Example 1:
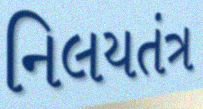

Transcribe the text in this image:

નિલયતંત્ર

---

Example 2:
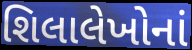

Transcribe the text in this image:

શિલાલેખોનાં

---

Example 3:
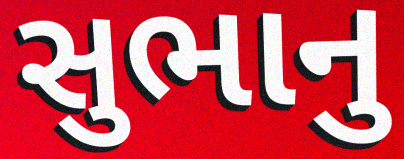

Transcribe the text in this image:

સુભાનુ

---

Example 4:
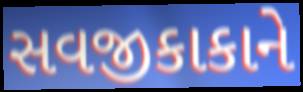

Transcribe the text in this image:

સવજીકાકાને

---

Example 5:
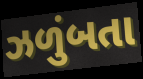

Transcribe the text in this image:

ઝળુંબતા